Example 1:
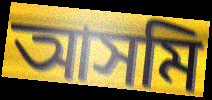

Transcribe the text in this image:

আসমি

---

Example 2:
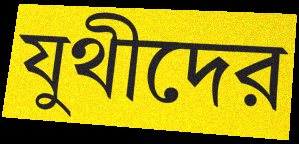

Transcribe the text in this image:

যুথীদের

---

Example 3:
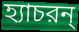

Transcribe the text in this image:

হ্যাচরন্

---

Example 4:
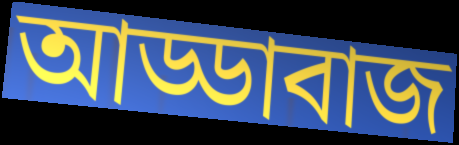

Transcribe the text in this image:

আড্ডাবাজ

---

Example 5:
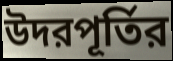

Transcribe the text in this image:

উদরপূর্তির